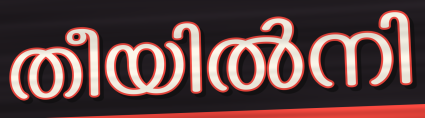
തീയിൽനി